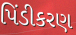
પિંડીકરણ